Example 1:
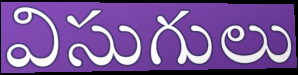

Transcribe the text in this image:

విసుగులు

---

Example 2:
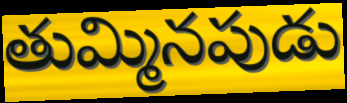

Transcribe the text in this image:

తుమ్మినపుడు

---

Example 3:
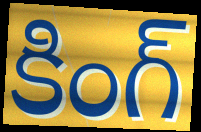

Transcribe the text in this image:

కింగ్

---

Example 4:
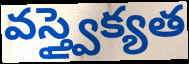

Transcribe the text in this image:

వస్త్వైక్యత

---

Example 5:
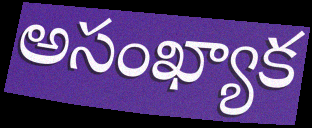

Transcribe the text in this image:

అసంఖ్యాక